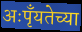
अःपृँयतेच्या